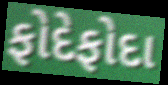
ફોદેફોદા